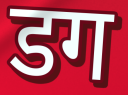
डग